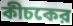
কীচকের